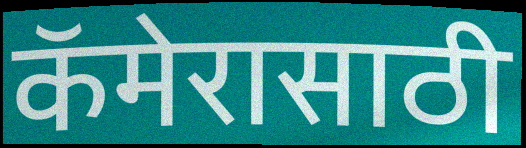
कॅमेरासाठी